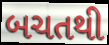
બચતથી